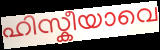
ഹിസ്കീയാവെ